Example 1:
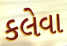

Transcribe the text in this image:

કલેવા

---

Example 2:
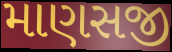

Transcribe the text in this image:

માણસજી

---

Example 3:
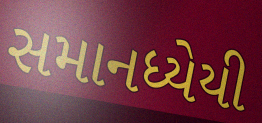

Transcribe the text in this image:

સમાનધ્યેયી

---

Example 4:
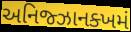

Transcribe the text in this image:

અનિજ્ઝાનક્ખમં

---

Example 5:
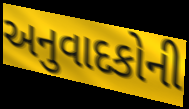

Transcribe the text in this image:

અનુવાદકોની